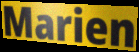
Marien